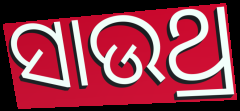
ସାଉଥ୍ର